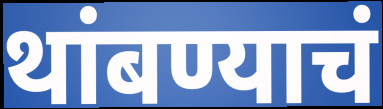
थांबण्याचं